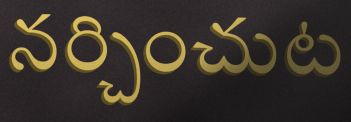
నర్చించుట